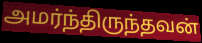
அமர்ந்திருந்தவன்